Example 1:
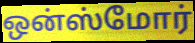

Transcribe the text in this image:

ஒன்ஸ்மோர்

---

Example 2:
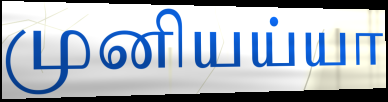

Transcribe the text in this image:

முனியய்யா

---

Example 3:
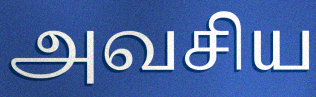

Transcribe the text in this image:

அவசிய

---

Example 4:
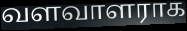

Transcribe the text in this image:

வளவாளராக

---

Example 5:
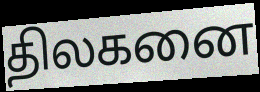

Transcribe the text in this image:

திலகனை